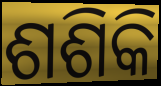
ଶଶିକି